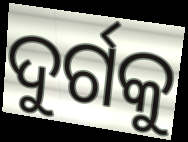
ଦୁର୍ଗକୁ